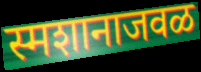
स्मशानाजवळ